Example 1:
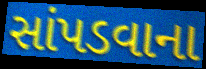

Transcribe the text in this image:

સાંપડવાના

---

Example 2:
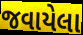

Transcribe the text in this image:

જવાયેલા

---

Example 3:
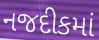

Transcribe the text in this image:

નજદીકમાં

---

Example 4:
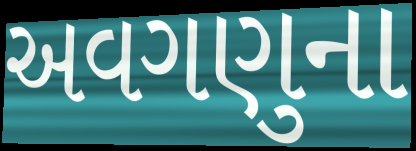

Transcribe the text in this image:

અવગણુના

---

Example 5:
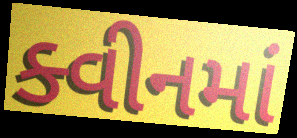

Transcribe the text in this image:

ક્વીનમાં